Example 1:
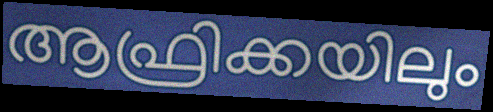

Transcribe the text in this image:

ആഫ്രിക്കയിലും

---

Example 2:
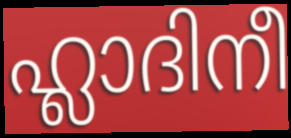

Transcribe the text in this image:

ഹ്ലാദിനീ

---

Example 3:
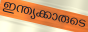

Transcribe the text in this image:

ഇന്ത്യക്കാരുടെ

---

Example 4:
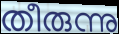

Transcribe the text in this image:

തീരുന്നു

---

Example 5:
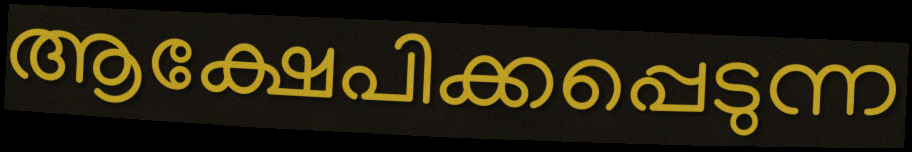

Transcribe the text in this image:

ആക്ഷേപിക്കപ്പെടുന്ന